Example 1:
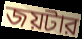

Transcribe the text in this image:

জয়টার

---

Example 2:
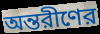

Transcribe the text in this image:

অন্তরীণের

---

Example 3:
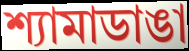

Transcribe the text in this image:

শ্যামাডাঙা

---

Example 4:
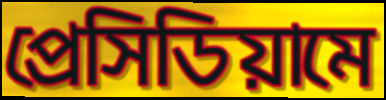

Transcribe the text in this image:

প্রেসিডিয়ামে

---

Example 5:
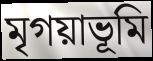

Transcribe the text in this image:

মৃগয়াভূমি